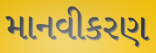
માનવીકરણ